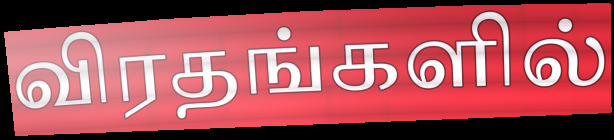
விரதங்களில்